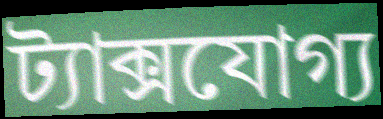
ট্যাক্সযোগ্য